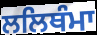
ਲਲਿਥੰਮਾ